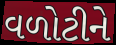
વળોટીને